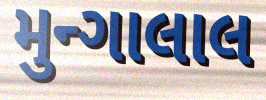
મુન્ગાલાલ